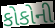
કોકોની